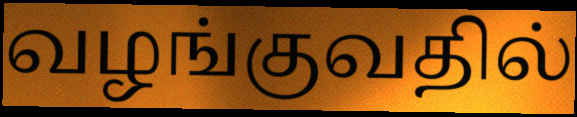
வழங்குவதில்